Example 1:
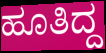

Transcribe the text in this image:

ಹೂತಿದ್ದ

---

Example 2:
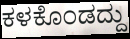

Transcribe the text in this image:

ಕಳಕೊಂಡದ್ದು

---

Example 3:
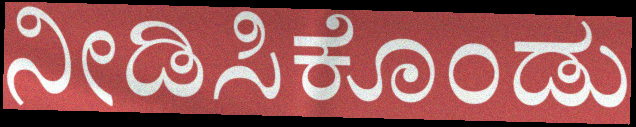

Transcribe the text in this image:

ನೀಡಿಸಿಕೊಂಡು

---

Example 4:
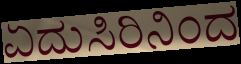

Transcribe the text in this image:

ಏದುಸಿರಿನಿಂದ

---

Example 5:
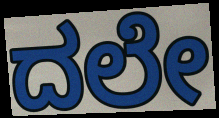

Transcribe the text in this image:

ದಲೇ